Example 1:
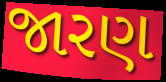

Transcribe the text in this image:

જારણ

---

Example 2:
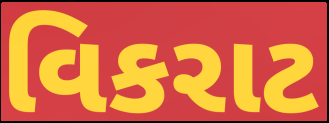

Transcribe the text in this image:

વિકરાટ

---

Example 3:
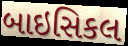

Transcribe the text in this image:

બાઇસિકલ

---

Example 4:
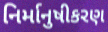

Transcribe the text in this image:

નિર્માનુષીકરણ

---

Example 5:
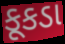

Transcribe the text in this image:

કૂકડા